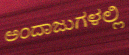
ಅಂದಾಜುಗಳಲ್ಲಿ